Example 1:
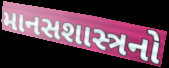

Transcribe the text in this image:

માનસશાસ્ત્રનો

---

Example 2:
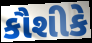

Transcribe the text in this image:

કૌશીકે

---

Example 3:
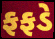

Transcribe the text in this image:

ફફડે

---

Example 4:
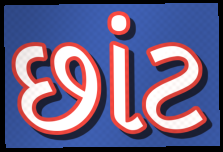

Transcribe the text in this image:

છાંટ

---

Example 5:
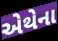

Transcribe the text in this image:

એથેના